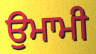
ਉਮਾਮੀ